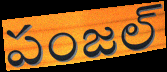
పంజల్